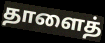
தாளைத்